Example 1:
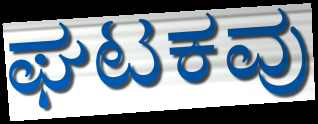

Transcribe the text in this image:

ಘಟಕವು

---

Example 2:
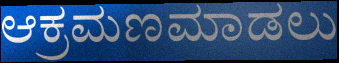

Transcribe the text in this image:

ಆಕ್ರಮಣಮಾಡಲು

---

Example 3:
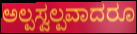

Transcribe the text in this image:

ಅಲ್ಪಸ್ವಲ್ಪವಾದರೂ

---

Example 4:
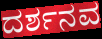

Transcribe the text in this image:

ದರ್ಶನವ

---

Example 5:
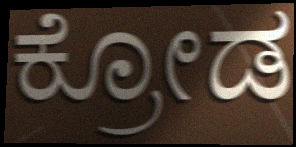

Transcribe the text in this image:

ಕ್ರೋಡ